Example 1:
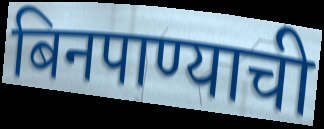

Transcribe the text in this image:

बिनपाण्याची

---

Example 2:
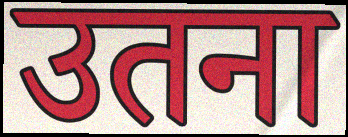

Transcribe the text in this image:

उतना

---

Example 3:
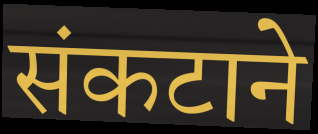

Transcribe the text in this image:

संकटाने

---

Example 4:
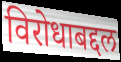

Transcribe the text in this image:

विरोधाबद्दल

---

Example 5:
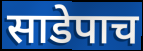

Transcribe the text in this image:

साडेपाच